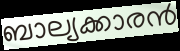
ബാല്യക്കാരൻ